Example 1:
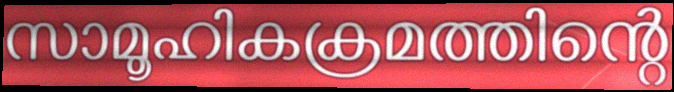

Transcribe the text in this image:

സാമൂഹികക്രമത്തിന്റെ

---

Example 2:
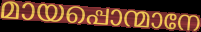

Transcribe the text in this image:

മായപ്പൊന്മാനേ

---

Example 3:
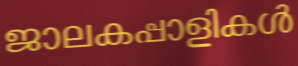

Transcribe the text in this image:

ജാലകപ്പാളികൾ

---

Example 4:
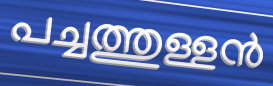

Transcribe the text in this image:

പച്ചത്തുള്ളൻ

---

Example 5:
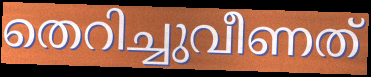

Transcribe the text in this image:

തെറിച്ചുവീണത്